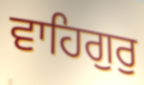
ਵਾਹਿਗੁਰੁ